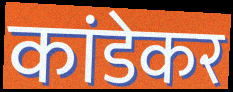
कांडेकर